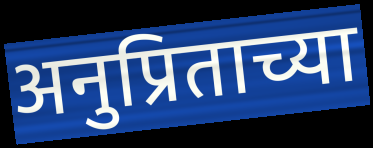
अनुप्रिताच्या